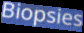
Biopsies